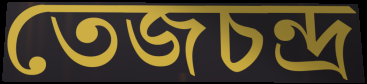
তেজচন্দ্র